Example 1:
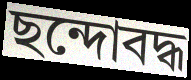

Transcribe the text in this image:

ছন্দোবদ্ধ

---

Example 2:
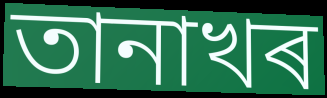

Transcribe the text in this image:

তানাখৰ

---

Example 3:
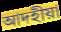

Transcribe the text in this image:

আদহীয়া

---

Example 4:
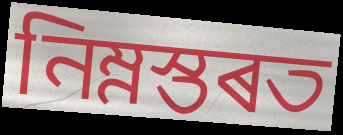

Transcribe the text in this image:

নিম্নস্তৰত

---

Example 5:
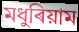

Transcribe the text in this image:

মধুৰিয়াম